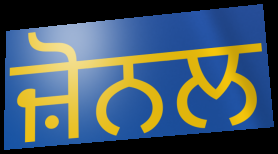
ਜ਼ੋਨਲ